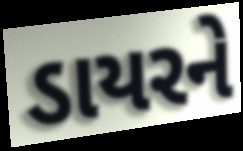
ડાયરને